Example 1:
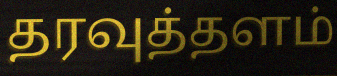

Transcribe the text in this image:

தரவுத்தளம்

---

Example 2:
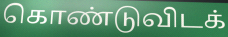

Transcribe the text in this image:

கொண்டுவிடக்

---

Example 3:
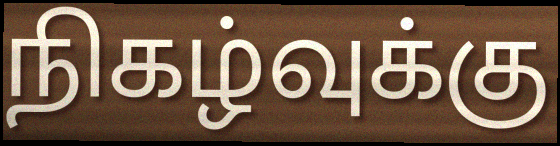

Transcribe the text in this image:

நிகழ்வுக்கு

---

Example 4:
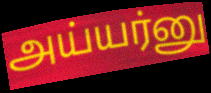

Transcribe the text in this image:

அய்யர்னு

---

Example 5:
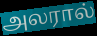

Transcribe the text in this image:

அலரால்